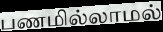
பணமில்லாமல்